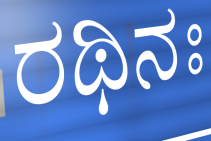
ರಥಿನಃ